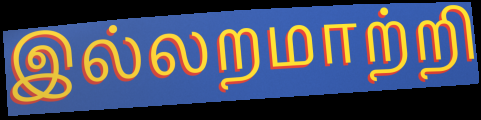
இல்லறமாற்றி